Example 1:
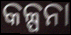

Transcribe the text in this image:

କଳ୍ପନା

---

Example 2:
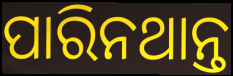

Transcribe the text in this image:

ପାରିନଥାନ୍ତ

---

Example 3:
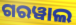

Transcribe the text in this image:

ଗରୱାଲ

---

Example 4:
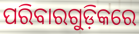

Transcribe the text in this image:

ପରିବାରଗୁଡ଼ିକରେ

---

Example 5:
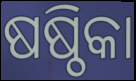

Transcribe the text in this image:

ଷଷ୍ଠିକା